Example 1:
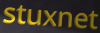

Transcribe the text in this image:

stuxnet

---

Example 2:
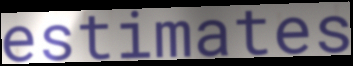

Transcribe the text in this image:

estimates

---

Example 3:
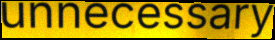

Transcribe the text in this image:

unnecessary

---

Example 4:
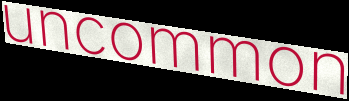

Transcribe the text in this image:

uncommon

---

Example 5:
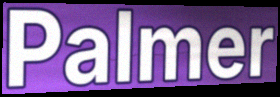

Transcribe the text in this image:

Palmer